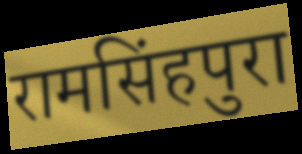
रामसिंहपुरा